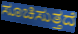
ಸೂಚಿಸುತ್ತದೆ